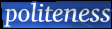
politeness